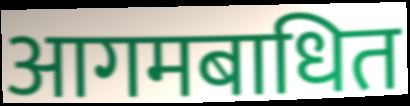
आगमबाधित